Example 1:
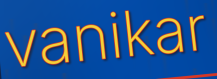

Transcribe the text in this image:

vanikar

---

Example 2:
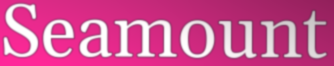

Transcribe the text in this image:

Seamount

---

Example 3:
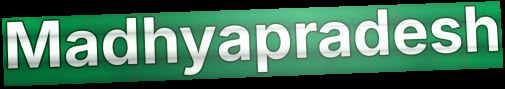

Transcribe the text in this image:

Madhyapradesh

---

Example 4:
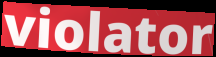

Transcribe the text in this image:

violator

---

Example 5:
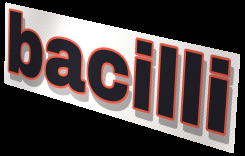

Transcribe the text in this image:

bacilli